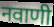
नवाणी